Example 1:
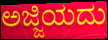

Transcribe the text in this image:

ಅಜ್ಜಿಯದು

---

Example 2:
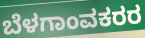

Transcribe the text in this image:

ಬೆಳಗಾಂವಕರರ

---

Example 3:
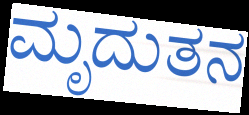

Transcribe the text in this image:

ಮೃದುತನ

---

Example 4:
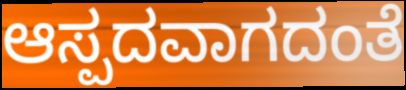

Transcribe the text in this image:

ಆಸ್ಪದವಾಗದಂತೆ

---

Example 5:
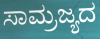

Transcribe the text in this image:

ಸಾಮ್ರಜ್ಯದ